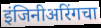
इंजिनीअरिंगचा